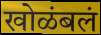
खोळंबलं